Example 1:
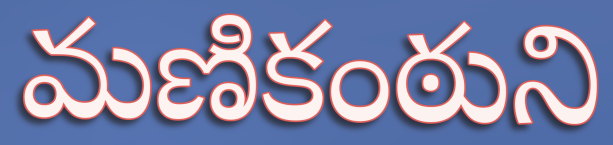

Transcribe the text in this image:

మణికంఠుని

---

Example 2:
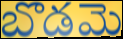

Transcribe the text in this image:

బొడమె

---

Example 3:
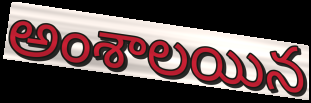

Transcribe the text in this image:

అంశాలయిన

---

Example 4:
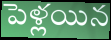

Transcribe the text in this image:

పెళ్లయిన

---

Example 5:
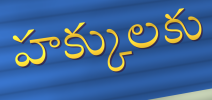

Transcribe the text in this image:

హక్కులకు